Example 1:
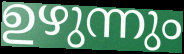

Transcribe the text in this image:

ഉഴുന്നും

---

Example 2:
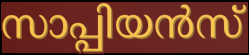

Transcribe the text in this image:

സാപ്പിയൻസ്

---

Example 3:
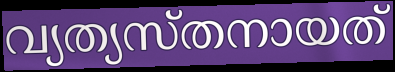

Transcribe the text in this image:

വ്യത്യസ്തനായത്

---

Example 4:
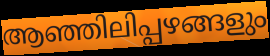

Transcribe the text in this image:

ആഞ്ഞിലിപ്പഴങ്ങളും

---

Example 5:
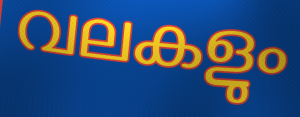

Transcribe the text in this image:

വലകളും